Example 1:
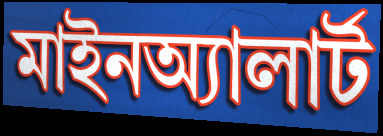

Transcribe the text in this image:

মাইনঅ্যালার্ট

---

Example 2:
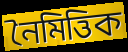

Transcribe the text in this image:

নৈমিত্তিক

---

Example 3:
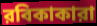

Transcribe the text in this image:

রবিকাকারা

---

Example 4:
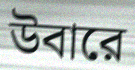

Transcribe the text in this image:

উবারে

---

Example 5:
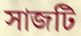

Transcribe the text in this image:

সাজটি